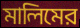
মালিমের